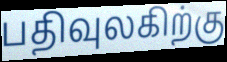
பதிவுலகிற்கு